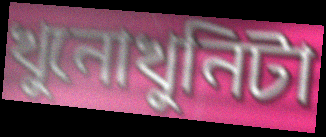
খুনোখুনিটা